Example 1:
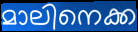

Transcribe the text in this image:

മാലിനെക്ക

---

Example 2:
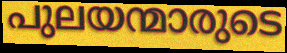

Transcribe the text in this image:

പുലയന്മാരുടെ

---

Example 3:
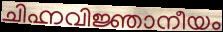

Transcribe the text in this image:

ചിഹ്നവിജ്ഞാനീയം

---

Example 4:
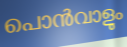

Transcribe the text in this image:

പൊൻവാളും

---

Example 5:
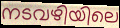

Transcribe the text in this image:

നടവഴിയിലെ